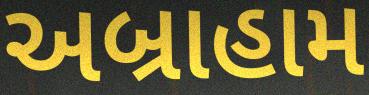
અબ્રાહામ